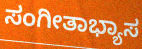
ಸಂಗೀತಾಭ್ಯಾಸ